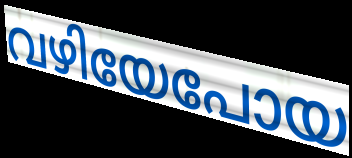
വഴിയേപോയ